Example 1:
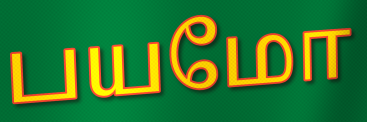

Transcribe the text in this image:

பயமோ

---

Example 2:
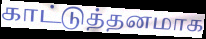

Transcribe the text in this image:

காட்டுத்தனமாக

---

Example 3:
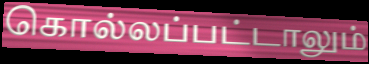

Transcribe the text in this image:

கொல்லப்பட்டாலும்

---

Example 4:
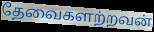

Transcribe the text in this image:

தேவைகளற்றவன்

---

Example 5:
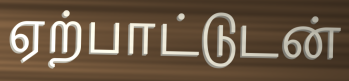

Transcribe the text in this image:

ஏற்பாட்டுடன்